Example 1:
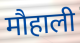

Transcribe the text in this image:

मौहाली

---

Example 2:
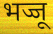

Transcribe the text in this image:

भज्जू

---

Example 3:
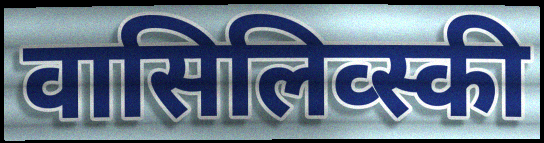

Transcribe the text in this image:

वासिलिव्स्की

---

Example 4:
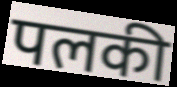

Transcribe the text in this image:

पलकी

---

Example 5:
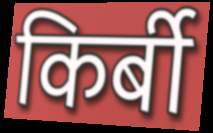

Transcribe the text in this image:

किर्बी